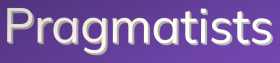
Pragmatists